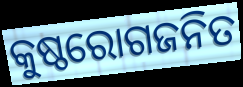
କୁଷ୍ଠରୋଗଜନିତ